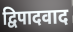
द्विपादवाद